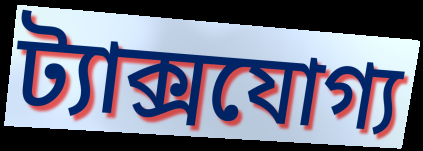
ট্যাক্সযোগ্য